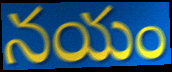
నయం